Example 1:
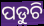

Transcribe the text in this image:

ପଡୁଚି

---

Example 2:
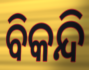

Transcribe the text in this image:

ବିକନ୍ଦି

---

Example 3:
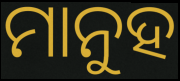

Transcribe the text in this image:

ମାନୁହ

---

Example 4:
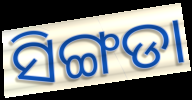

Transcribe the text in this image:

ସିଙ୍ଗଡା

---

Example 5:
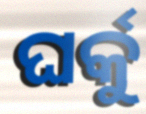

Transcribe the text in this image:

ଘର୍କୁ